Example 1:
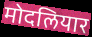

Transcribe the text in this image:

मोदलियार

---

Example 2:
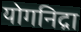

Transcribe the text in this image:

योगनिद्रा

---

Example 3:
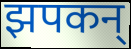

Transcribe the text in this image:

झपकन्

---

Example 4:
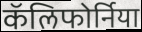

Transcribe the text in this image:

कॅलिफोर्निया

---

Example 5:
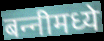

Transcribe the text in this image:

बन्नीमध्ये